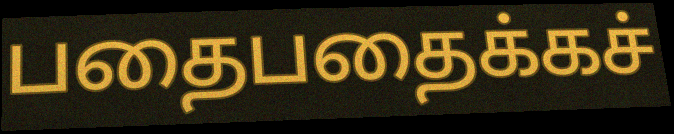
பதைபதைக்கச்